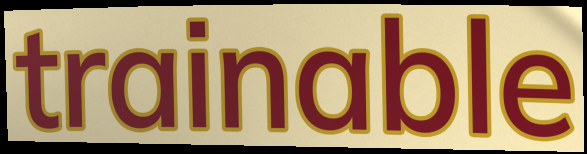
trainable